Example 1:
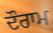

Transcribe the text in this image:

ਦੌਰਾਮ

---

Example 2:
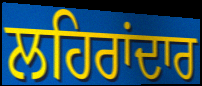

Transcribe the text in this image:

ਲਹਿਰਾਂਦਾਰ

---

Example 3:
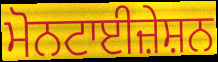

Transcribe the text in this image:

ਮੋਨਟਾਈਜ਼ੇਸ਼ਨ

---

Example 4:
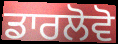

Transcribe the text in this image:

ਡਾਰਲੋਵੋ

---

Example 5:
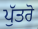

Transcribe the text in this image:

ਪੁੱਤਰੋ